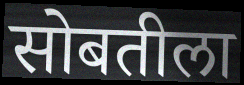
सोबतीला